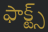
ఫాక్ట్స్